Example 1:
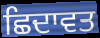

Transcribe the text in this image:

ਛਿਦਾਵਤ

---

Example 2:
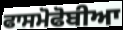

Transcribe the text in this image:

ਫਾਸਮੋਫੋਬੀਆ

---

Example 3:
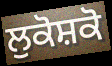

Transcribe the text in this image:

ਲੁਕੋਸ਼ਕੋ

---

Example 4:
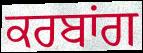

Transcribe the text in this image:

ਕਰਬਾਂਗ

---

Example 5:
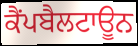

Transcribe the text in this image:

ਕੈਂਪਬੈਲਟਾਊਨ